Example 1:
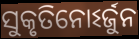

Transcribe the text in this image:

ସୁକୃତିନୋଽର୍ଜୁନ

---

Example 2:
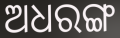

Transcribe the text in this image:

ଅଧରଙ୍ଗ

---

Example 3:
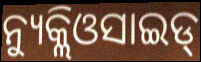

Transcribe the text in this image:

ନ୍ୟୁକ୍ଲିଓସାଇଡ୍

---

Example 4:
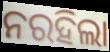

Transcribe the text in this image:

ନରହିଲା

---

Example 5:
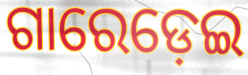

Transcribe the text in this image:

ଗାରେଡ଼େଇ